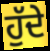
ਹੁੱਦੇ